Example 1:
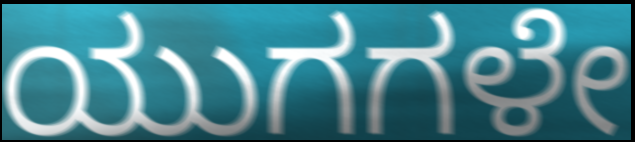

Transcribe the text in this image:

ಯುಗಗಳೇ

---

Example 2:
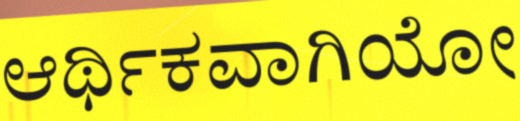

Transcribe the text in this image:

ಆರ್ಥಿಕವಾಗಿಯೋ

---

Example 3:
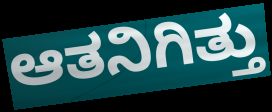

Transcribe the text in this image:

ಆತನಿಗಿತ್ತು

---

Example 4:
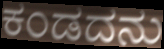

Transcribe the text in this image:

ಕಂಡದನು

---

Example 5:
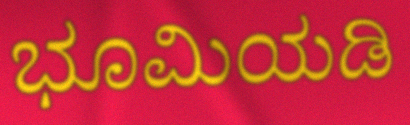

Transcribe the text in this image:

ಭೂಮಿಯಡಿ